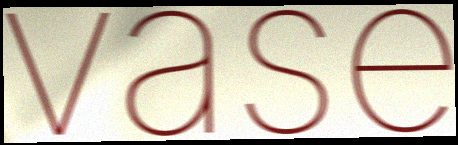
vase